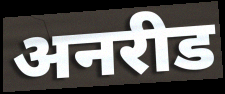
अनरीड